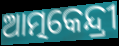
ଆତ୍ମକେନ୍ଦ୍ରୀ